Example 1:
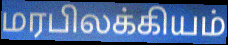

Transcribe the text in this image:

மரபிலக்கியம்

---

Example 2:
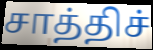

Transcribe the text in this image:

சாத்திச்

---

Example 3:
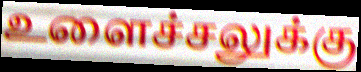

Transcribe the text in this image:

உளைச்சலுக்கு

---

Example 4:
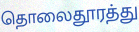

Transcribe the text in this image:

தொலைதூரத்து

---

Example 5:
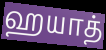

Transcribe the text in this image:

ஹயாத்